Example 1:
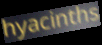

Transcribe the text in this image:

hyacinths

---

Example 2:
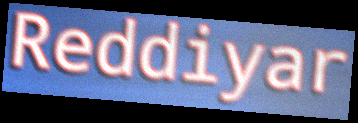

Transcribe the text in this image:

Reddiyar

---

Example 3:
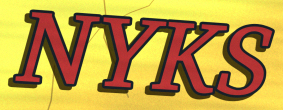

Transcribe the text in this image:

NYKS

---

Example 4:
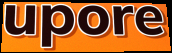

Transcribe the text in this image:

upore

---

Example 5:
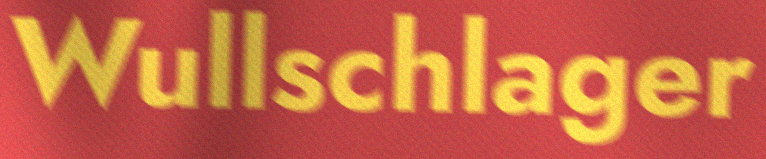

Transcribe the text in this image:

Wullschlager